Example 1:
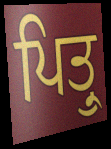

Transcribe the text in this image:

ਪਿਤ੍ਰੁ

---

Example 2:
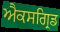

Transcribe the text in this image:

ਐਕਸਗ੍ਰਿਡ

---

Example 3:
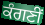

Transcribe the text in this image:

ਕੰਗਣੀਂ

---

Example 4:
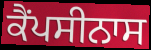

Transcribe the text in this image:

ਕੈਂਪਸੀਨਾਸ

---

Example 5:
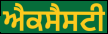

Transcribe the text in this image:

ਐਕਸੈਸਟੀ